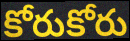
కోరుకోరు